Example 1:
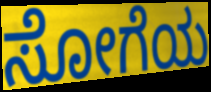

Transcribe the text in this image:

ಸೋಗೆಯ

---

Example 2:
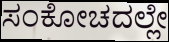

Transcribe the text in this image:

ಸಂಕೋಚದಲ್ಲೇ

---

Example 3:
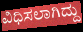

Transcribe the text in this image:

ವಿಧಿಸಲಾಗಿದ್ದು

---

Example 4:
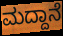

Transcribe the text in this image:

ಮದ್ದಾನೆ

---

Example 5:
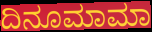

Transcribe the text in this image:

ದಿನೂಮಾಮಾ